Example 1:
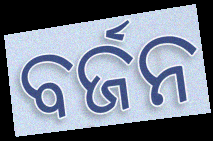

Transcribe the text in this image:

ବର୍ଜନ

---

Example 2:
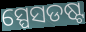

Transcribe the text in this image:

ସ୍ପେସଡଷ୍ଟ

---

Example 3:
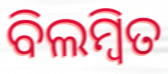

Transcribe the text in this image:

ବିଲମ୍ବିତ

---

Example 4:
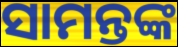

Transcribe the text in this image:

ସାମନ୍ତଙ୍କ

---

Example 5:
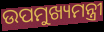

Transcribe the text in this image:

ଉପମୁଖ୍ୟମନ୍ତ୍ରୀ